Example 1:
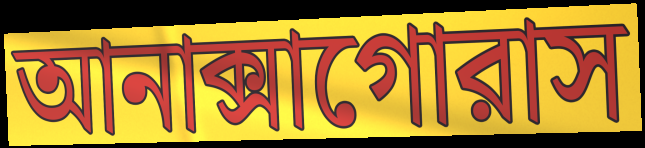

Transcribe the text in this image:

আনাক্সাগোরাস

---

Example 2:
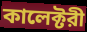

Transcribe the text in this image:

কালেক্টরী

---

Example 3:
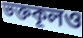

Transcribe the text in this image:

ভক্তকূলও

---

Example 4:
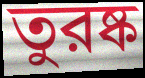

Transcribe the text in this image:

তুরষ্ক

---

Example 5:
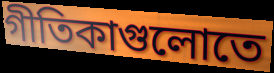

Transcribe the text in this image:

গীতিকাগুলোতে